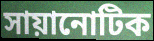
সায়ানোটিক